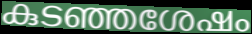
കുടഞ്ഞശേഷം